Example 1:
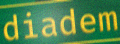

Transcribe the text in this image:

diadem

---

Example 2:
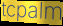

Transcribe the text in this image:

tcpalm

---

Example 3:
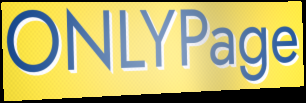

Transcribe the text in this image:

ONLYPage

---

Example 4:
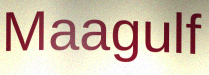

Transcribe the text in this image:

Maagulf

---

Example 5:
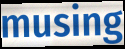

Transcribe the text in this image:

musing